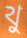
থু